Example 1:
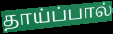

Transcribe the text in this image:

தாய்ப்பால்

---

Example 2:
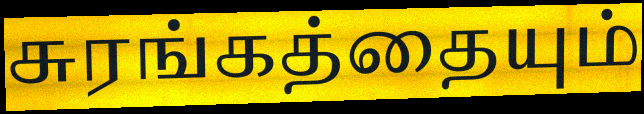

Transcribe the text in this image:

சுரங்கத்தையும்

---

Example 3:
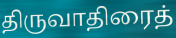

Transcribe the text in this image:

திருவாதிரைத்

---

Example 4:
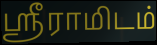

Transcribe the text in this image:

ஸ்ரீராமிடம்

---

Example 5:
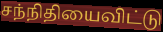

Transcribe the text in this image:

சந்நிதியைவிட்டு